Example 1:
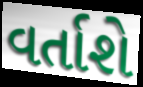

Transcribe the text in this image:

વર્તાશે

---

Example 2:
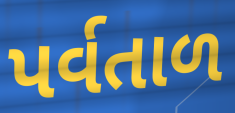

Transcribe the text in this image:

પર્વતાળ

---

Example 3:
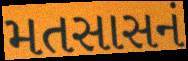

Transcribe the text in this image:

મતસાસનં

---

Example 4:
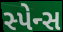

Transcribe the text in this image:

સ્પેન્સ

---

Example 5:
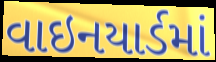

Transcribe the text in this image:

વાઇનયાર્ડમાં